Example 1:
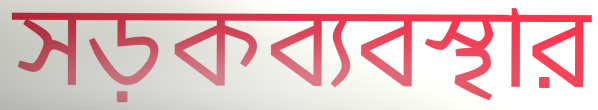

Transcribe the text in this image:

সড়কব্যবস্থার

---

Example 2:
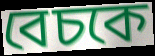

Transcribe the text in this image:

বেচকে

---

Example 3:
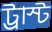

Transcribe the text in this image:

ট্রাস্ট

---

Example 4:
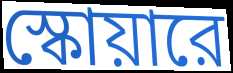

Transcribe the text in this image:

স্কোয়ারে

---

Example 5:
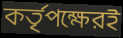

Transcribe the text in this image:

কর্তৃপক্ষেরই